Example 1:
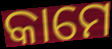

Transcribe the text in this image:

କାମେ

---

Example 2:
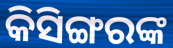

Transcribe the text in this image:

କିସିଙ୍ଗରଙ୍କ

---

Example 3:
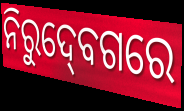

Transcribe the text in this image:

ନିରୁଦ୍‍ବେଗରେ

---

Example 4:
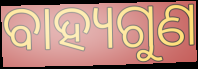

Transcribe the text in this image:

ବାହ୍ୟଗୁଣ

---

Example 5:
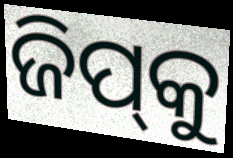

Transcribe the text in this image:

ଜିପ୍‌କୁ